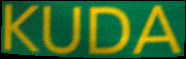
KUDA